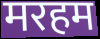
मरहम